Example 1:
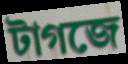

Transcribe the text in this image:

টাগজে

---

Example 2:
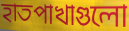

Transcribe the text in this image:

হাতপাখাগুলো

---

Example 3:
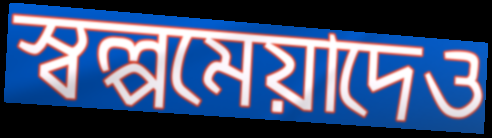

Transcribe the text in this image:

স্বল্পমেয়াদেও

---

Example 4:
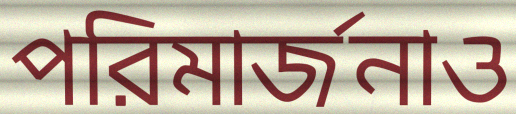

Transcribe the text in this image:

পরিমার্জনাও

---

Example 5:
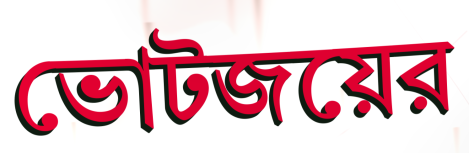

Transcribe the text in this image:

ভোটজয়ের